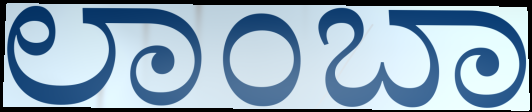
ಲಾಂಬಾ